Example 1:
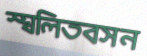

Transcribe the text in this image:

স্খলিতবসন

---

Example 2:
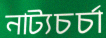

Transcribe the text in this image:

নাট্যচর্চা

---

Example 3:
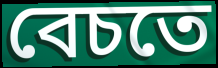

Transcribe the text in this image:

বেচতে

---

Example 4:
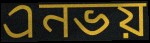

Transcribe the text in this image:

এনভয়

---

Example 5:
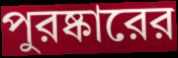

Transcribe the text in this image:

পুরষ্কারের